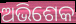
ଅଭିଶେକ